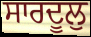
ਸਾਰਦੂਲੁ